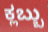
ಕ್ಲಬ್ಬು